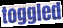
toggled